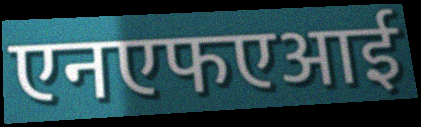
एनएफएआई